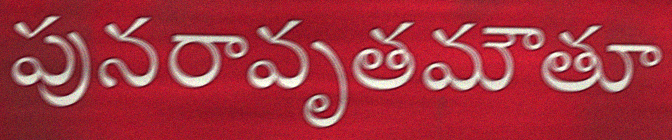
పునరావృతమౌతూ